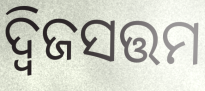
ଦ୍ୱିଜସତ୍ତମ